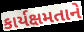
કાર્યક્ષમતાને